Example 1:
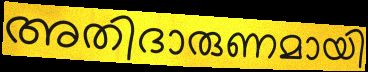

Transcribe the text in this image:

അതിദാരുണമായി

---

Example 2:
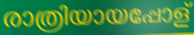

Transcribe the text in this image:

രാത്രിയായപ്പോള്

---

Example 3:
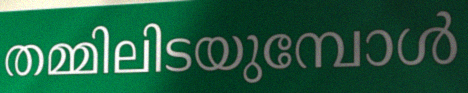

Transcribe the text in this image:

തമ്മിലിടയുമ്പോൾ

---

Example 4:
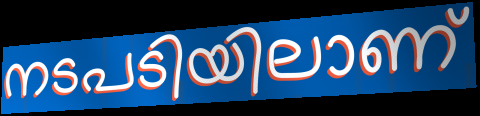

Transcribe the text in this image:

നടപടിയിലാണ്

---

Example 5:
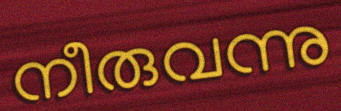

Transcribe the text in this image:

നീരുവന്നു